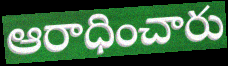
ఆరాధించారు